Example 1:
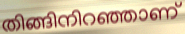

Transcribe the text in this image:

തിങ്ങിനിറഞ്ഞാണ്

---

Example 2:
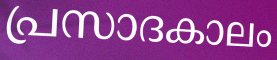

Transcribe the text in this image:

പ്രസാദകാലം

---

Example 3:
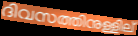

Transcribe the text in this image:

ദിവസത്തിനുള്ളില്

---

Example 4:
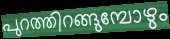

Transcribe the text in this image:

പുറത്തിറങ്ങുമ്പോഴും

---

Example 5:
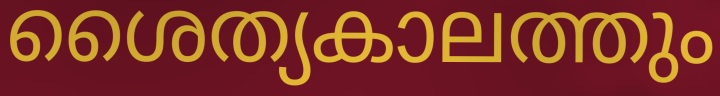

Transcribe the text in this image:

ശൈത്യകാലത്തും